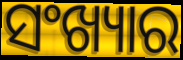
ସଂଖ୍ୟାର